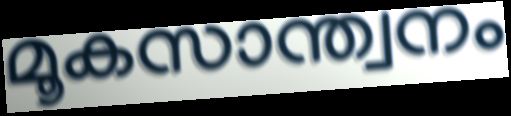
മൂകസാന്ത്വനം